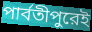
পার্বতীপুরেই